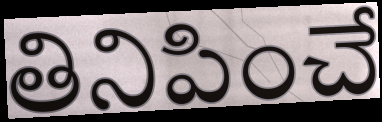
తినిపించే